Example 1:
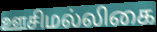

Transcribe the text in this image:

ஊசிமல்லிகை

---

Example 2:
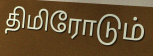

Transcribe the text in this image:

திமிரோடும்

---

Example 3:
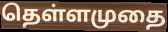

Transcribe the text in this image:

தெள்ளமுதை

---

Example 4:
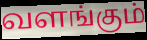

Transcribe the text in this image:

வளங்கும்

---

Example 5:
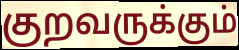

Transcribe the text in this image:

குறவருக்கும்